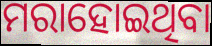
ମରାହୋଇଥିବା